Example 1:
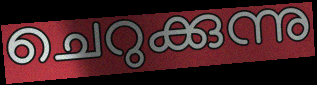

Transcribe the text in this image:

ചെറുക്കുന്നു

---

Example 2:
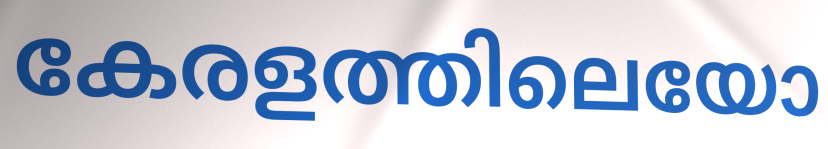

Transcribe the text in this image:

കേരളത്തിലെയോ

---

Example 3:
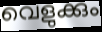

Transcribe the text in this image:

വെളുക്കും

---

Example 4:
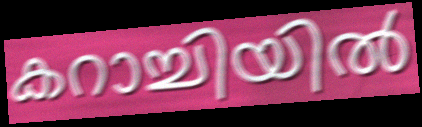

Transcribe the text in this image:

കറാച്ചിയിൽ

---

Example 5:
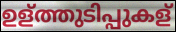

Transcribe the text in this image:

ഉള്ത്തുടിപ്പുകള്